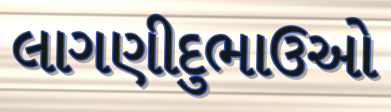
લાગણીદુભાઉઓ